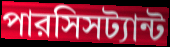
পারসিসট্যান্ট